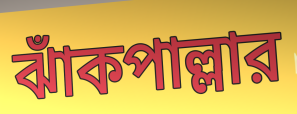
ঝাঁকপাল্লার